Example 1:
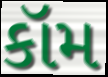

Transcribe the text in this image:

કૉમ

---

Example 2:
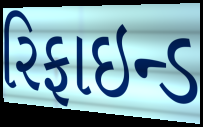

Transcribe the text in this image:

રિફાઇન્ડ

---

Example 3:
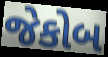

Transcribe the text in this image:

જેકોબ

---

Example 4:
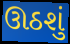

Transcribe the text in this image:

ઊઠશું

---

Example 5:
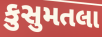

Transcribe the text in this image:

કુસુમતલા